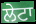
ਲੇਟਾ